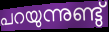
പറയുന്നുണ്ടു്